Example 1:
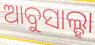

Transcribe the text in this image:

ଆବୁସାଲ୍ହା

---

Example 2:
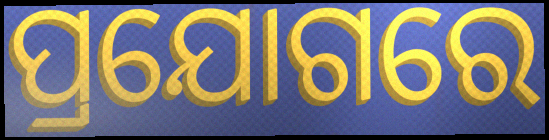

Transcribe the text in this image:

ପ୍ରଯୋଗରେ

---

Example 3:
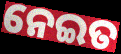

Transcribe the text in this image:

ନେଇତ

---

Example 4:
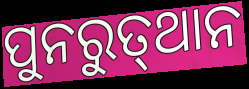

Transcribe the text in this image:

ପୁନରୁତ୍‍ଥାନ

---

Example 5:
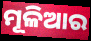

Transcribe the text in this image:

ମୂଳିଆର